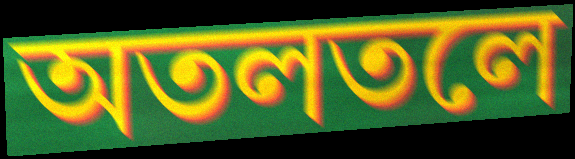
অতলতলে